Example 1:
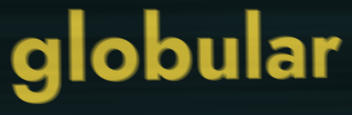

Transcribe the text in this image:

globular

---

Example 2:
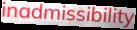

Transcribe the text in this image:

inadmissibility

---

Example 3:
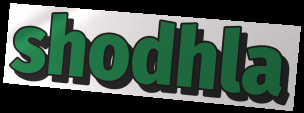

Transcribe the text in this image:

shodhla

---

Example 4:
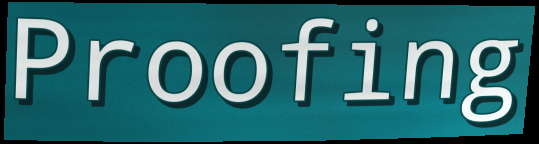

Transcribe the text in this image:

Proofing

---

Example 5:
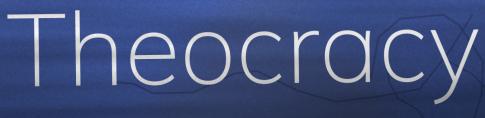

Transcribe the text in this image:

Theocracy